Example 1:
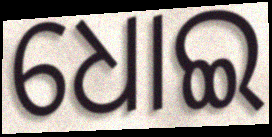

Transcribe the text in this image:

ଧୋଇ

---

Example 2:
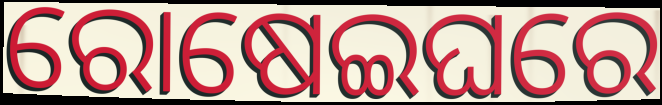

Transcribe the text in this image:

ରୋଷେଇଘରେ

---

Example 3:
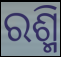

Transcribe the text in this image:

ରଶ୍ମି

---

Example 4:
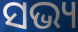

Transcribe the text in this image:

ସଭ୍ୟ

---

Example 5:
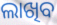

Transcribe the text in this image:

ଲାଖିବ